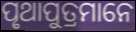
ପୃଥାପୁତ୍ରମାନେ